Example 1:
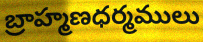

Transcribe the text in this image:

బ్రాహ్మణధర్మములు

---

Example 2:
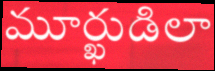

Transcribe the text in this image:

మూర్ఖుడిలా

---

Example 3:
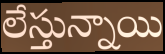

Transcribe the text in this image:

లేస్తున్నాయి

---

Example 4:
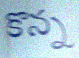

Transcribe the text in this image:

కొన్న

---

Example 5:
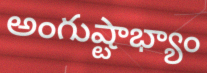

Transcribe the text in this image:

అంగుష్టాభ్యాం